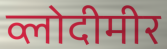
व्लोदीमीर